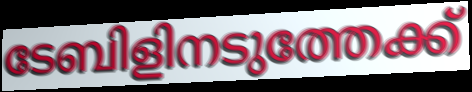
ടേബിളിനടുത്തേക്ക്